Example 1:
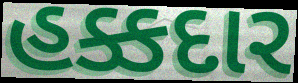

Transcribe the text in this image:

હક્કદાર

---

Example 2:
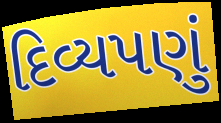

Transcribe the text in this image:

દિવ્યપણું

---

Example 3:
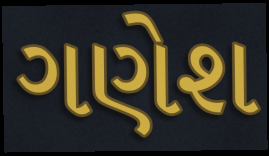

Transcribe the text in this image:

ગણેશ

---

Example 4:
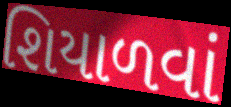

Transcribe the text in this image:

શિયાળવાં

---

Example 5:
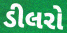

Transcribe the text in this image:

ડીલરો